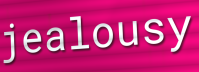
jealousy